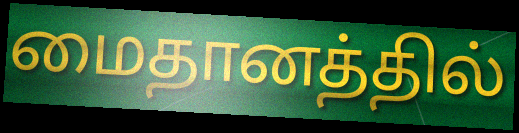
மைதானத்தில்